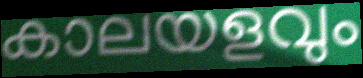
കാലയളവും